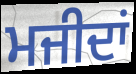
ਮਜੀਦਾਂ